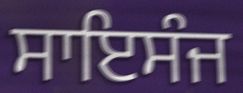
ਸਾਇਸੰਜ